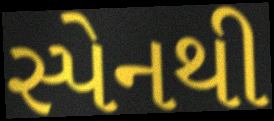
સ્પેનથી